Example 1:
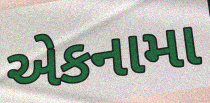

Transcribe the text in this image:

એકનામા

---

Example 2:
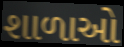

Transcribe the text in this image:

શાળાઓ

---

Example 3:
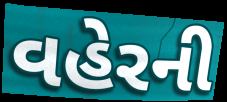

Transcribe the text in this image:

વહેરની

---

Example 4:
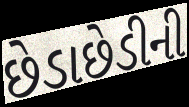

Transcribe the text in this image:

છેડાછેડીની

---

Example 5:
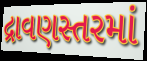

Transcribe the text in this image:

દ્રાવણસ્તરમાં